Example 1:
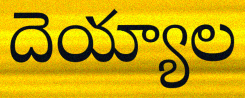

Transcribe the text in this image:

దెయ్యాల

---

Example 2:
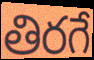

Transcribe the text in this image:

తిరగే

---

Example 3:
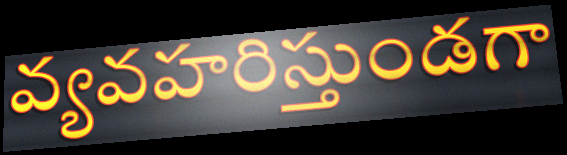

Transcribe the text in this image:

వ్యవహరిస్తుండగా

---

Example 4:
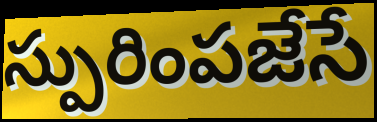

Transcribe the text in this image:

స్పురింపజేసే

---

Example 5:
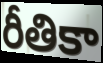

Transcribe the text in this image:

రీతికా